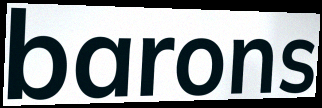
barons